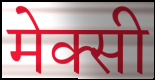
मेक्सी